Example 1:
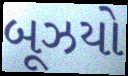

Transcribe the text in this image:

બૂઝયો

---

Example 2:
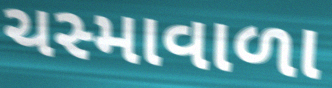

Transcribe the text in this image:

ચસ્માવાળા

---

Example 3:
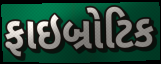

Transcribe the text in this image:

ફાઇબ્રોટિક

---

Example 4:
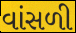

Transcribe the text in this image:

વાંસળી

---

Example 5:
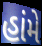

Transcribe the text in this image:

હાંમે